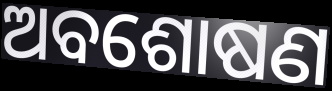
ଅବଶୋଷଣ